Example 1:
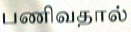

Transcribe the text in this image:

பணிவதால்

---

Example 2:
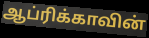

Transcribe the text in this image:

ஆப்ரிக்காவின்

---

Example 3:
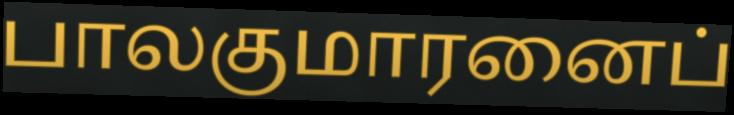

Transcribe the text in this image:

பாலகுமாரனைப்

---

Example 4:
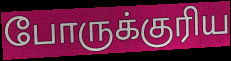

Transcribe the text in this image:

போருக்குரிய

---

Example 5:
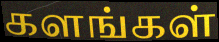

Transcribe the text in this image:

களங்கள்